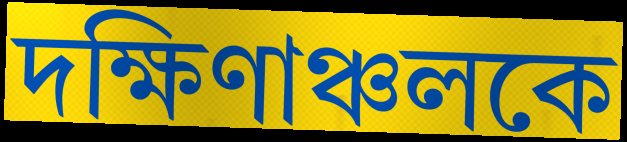
দক্ষিণাঞ্চলকে